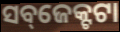
ସବ୍‌ଜେକ୍ଟଟା